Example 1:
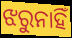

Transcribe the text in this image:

ଝରୁନାହିଁ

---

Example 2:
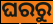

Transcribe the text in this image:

ଘରରୁ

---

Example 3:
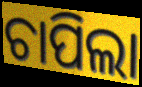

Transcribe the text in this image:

ଚାପିଲା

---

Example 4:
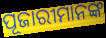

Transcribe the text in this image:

ପୂଜାରୀମାନଙ୍କ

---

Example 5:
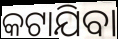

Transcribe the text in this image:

କଟାଯିବା